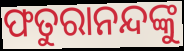
ଫତୁରାନନ୍ଦଙ୍କୁ